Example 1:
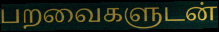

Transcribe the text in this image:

பறவைகளுடன்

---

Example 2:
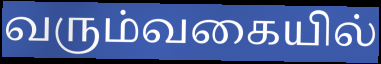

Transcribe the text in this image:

வரும்வகையில்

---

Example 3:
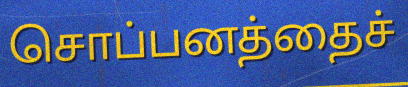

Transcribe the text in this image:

சொப்பனத்தைச்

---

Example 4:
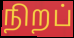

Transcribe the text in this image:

நிறப்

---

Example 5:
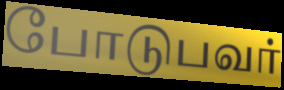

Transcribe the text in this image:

போடுபவர்